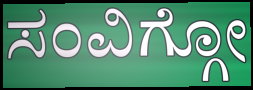
ಸಂವಿಗ್ಗೋ